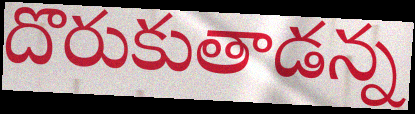
దొరుకుతాడన్న